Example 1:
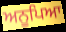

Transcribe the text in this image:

ਅਨੂਪਿਆ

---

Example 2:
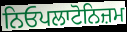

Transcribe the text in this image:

ਨਿਓਪਲਾਟੋਨਿਜ਼ਮ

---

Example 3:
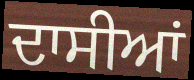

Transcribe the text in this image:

ਦਾਸੀਆਂ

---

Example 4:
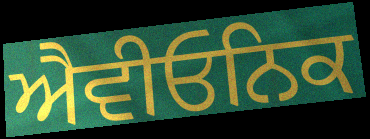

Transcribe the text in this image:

ਐਵੀਓਨਿਕ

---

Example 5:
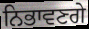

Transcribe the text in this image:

ਨਿਭਾਵਣਗੇ